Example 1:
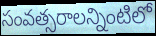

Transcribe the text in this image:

సంవత్సరాలన్నింటిలో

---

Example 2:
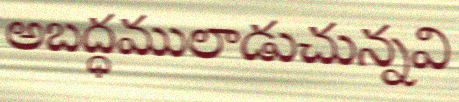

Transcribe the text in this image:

అబద్ధములాడుచున్నవి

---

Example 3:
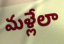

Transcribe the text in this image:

మళ్లేలా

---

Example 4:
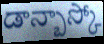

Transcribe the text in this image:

డాన్బాస్కో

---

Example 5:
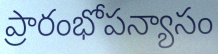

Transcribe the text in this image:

ప్రారంభోపన్యాసం